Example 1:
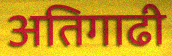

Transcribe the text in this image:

अतिगाढी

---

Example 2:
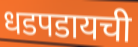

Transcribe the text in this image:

धडपडायची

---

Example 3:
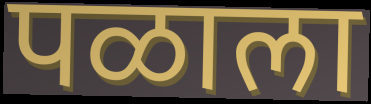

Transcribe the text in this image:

पळाला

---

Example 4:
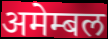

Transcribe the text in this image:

अमेम्बल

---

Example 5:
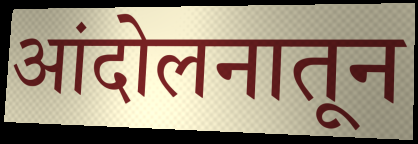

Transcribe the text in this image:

आंदोलनातून